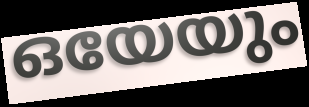
ഒയേയും